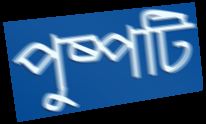
পুষ্পটি